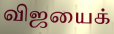
விஜயைக்